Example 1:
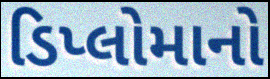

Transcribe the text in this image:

ડિપ્લોમાનો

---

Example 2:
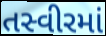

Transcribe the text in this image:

તસ્વીરમાં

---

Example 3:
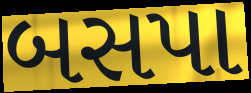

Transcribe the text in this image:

બસપા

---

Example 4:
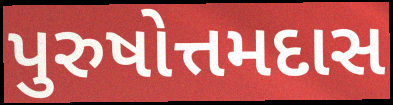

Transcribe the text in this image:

પુરુષોત્તમદાસ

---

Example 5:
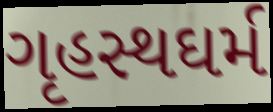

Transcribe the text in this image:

ગૃહસ્થઘર્મ